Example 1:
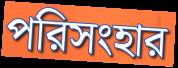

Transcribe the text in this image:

পরিসংহার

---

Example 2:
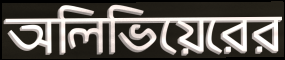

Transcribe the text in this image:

অলিভিয়েরের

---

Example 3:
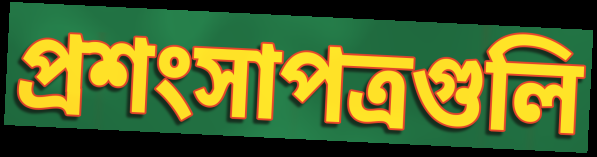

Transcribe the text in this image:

প্রশংসাপত্রগুলি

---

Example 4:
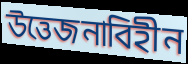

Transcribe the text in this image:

উত্তেজনাবিহীন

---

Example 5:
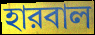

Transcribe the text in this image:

হারবাল